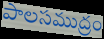
పాలసముద్రం